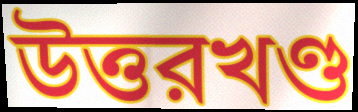
উত্তরখণ্ড